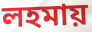
লহমায়